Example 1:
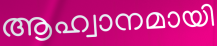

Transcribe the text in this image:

ആഹ്വാനമായി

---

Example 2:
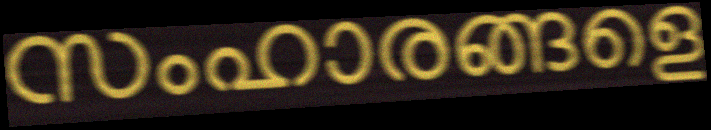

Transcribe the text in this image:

സംഹാരങ്ങളെ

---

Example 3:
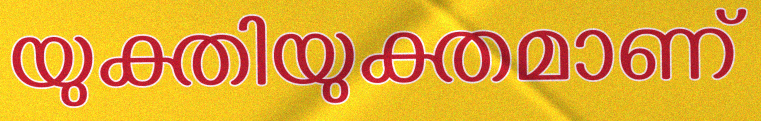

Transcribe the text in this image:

യുക്തിയുക്തമാണ്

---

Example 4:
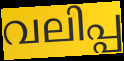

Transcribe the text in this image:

വലിപ്പ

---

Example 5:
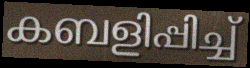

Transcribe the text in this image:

കബളിപ്പിച്ച്